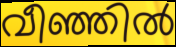
വീഞ്ഞിൽ